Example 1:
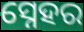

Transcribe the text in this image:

ସ୍ନେହର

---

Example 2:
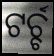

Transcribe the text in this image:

ଟର୍ଚ୍ଚ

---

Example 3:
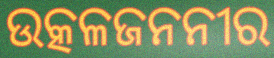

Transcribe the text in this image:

ଉତ୍କଳଜନନୀର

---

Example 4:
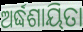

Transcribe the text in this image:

ଅର୍ଦ୍ଧଶାୟିତା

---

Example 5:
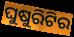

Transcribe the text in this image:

ଘୁଷୁରିଟିର